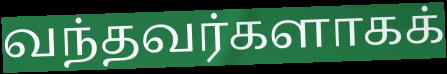
வந்தவர்களாகக்